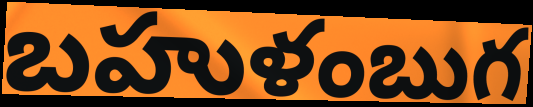
బహుళంబుగ